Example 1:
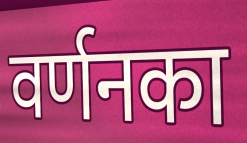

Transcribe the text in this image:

वर्णनका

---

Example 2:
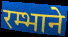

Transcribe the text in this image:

रम्भाने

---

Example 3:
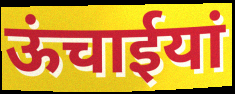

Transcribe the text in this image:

ऊंचाईयां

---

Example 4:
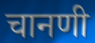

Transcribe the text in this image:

चानणी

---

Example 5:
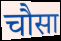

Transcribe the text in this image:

चौसा